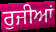
ਰੁਜੀਆਂ